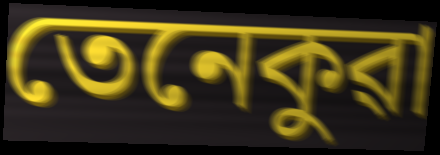
তেনেকুৱা